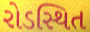
રોડસ્થિત